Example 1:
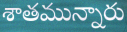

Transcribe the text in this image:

శాతమున్నారు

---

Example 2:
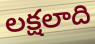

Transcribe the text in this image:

లక్షలాది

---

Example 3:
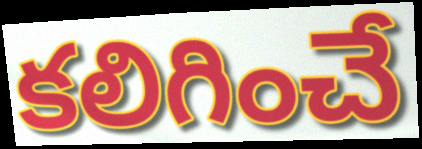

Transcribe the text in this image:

కలిగించే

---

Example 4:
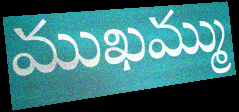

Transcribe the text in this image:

ముఖమ్ము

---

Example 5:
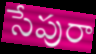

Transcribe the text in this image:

సేపురా